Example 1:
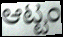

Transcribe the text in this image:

ಆಟ್ಟಂ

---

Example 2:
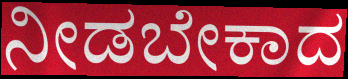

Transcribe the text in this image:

ನೀಡಬೇಕಾದ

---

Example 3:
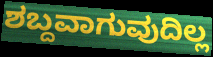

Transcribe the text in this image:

ಶಬ್ದವಾಗುವುದಿಲ್ಲ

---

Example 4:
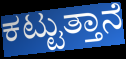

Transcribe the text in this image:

ಕಟ್ಟುತ್ತಾನೆ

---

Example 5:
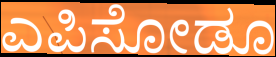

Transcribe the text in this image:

ಎಪಿಸೋಡೂ